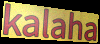
kalaha